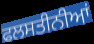
ਫਲਸਤੀਨੀਆਂ